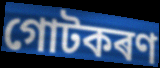
গোটকৰণ